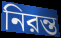
নিরন্ত